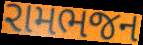
રામભજન